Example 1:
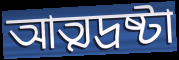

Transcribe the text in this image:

আত্মদ্রষ্টা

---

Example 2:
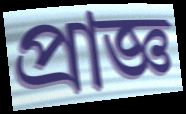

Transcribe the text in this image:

প্রাজ্ঞ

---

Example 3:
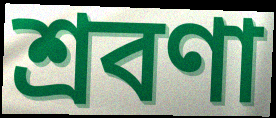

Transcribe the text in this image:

শ্রবণা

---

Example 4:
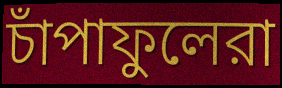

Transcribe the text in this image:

চাঁপাফুলেরা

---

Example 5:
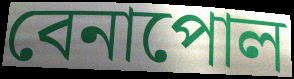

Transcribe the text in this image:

বেনাপোল